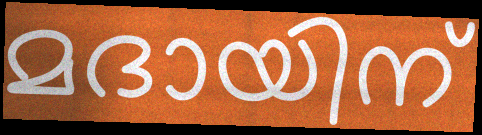
മദായിന്